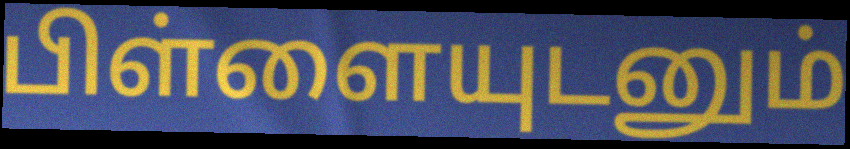
பிள்ளையுடனும்